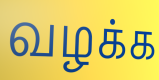
வழக்க